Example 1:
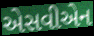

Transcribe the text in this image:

એસવીએન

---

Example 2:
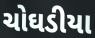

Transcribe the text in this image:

ચોઘડીયા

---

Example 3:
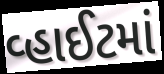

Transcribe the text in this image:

વ્હાઈટમાં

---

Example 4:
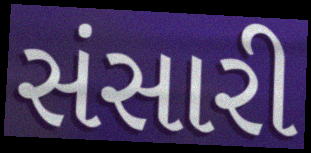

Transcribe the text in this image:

સંસારી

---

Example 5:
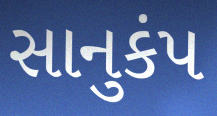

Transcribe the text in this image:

સાનુકંપ